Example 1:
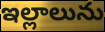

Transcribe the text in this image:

ఇల్లాలును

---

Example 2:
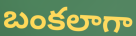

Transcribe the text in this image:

బంకలాగా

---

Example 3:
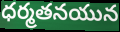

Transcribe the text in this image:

ధర్మతనయున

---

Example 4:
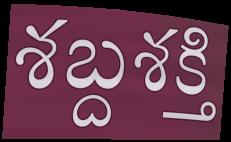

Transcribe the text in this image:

శబ్దశక్తి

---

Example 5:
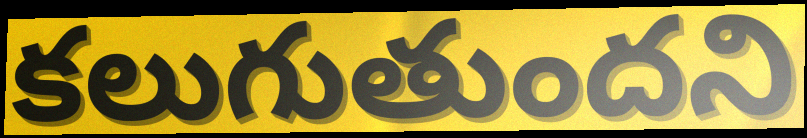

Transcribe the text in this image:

కలుగుతుందని